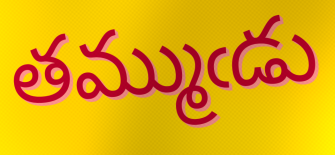
తమ్ముఁడు